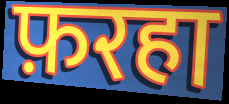
फ़रहा